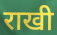
राखी